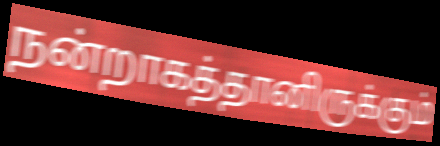
நன்றாகத்தானிருக்கும்